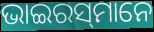
ଭାଇରସ୍‌ମାନେ